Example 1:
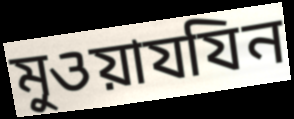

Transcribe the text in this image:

মুওয়াযযিন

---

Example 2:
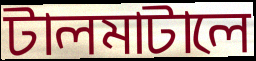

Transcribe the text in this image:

টালমাটালে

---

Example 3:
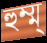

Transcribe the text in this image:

হুম্ম্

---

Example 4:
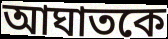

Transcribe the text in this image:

আঘাতকে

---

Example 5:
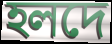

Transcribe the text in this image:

হলদে